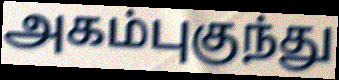
அகம்புகுந்து